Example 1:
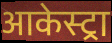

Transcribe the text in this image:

आकेस्ट्रा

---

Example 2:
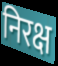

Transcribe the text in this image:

निरक्ष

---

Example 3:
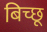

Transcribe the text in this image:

बिच्छू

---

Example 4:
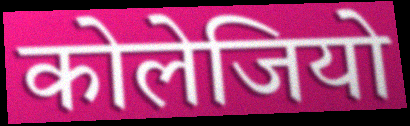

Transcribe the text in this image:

कोलेजियो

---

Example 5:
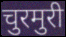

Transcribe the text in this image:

चुरमुरी